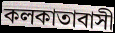
কলকাতাবাসী